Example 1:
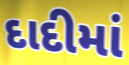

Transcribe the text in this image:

દાદીમાં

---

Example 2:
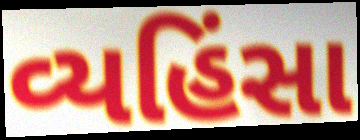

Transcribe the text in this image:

વ્યહિંસા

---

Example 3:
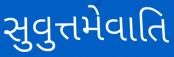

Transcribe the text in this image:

સુવુત્તમેવાતિ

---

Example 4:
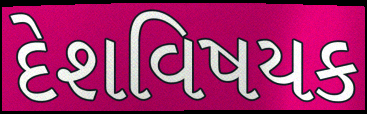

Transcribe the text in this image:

દેશવિષયક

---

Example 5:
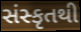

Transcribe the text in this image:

સંસ્કૃતથી